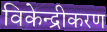
विकेन्द्रीकरण